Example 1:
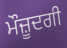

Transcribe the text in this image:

ਮੌਜ਼ੂਦਗੀ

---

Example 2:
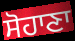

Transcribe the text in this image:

ਸੋਹਾਣਾ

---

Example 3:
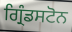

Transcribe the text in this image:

ਗ੍ਰਿੰਡਸਟੋਨ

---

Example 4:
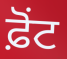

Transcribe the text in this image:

ਫ਼ੋਂਟ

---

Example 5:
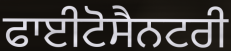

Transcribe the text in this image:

ਫਾਈਟੋਸੈਨਟਰੀ